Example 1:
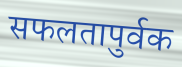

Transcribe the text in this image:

सफलतापुर्वक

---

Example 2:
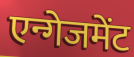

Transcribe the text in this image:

एन्गेजमेंट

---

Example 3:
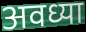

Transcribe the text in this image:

अवध्या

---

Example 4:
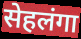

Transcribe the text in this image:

सेहलंगा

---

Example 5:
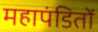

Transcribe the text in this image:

महापंडितों